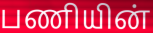
பணியின்